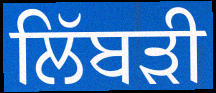
ਲਿੱਬੜੀ